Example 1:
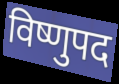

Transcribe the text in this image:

विष्णुपद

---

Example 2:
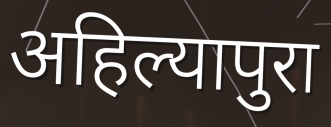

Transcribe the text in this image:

अहिल्यापुरा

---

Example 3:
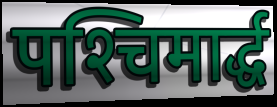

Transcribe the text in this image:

पश्चिमार्द्ध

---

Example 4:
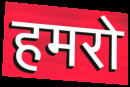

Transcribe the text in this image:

हमरो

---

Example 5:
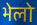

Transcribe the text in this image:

भेलो